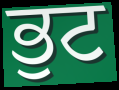
ਭੁਟ